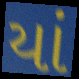
યાં